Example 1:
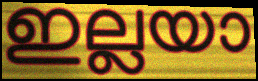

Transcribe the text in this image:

ഇല്ലയാ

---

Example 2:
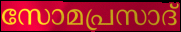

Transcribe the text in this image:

സോമപ്രസാദ്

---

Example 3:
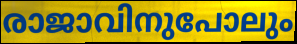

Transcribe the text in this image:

രാജാവിനുപോലും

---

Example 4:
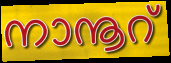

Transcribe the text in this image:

നാനൂറ്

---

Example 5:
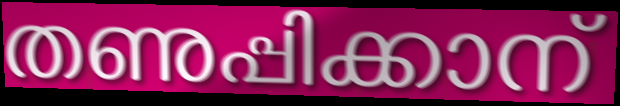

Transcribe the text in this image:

തണുപ്പിക്കാന്